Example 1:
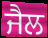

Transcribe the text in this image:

ਜੈਲ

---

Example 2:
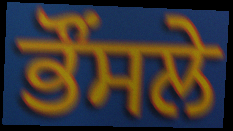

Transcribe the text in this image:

ਭੌਂਸਲੇ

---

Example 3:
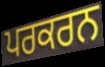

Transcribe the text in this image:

ਪਰਕਰਨ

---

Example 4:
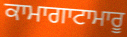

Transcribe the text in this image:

ਕਾਮਾਗਾਟਾਮਾਰੂ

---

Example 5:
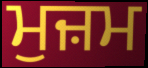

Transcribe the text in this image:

ਮੁਜ਼ਮ